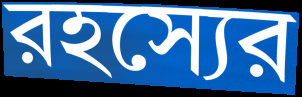
রহস্যের